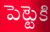
పెట్టెకి